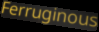
Ferruginous